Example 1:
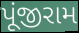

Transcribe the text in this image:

પૂંજીરામ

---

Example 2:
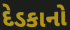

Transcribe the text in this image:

દેડકાનો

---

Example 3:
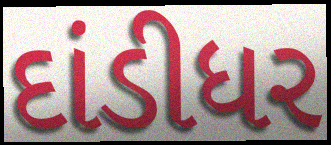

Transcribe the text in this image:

દાંડીધર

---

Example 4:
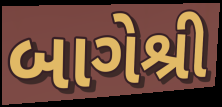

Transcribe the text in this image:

બાગેશ્રી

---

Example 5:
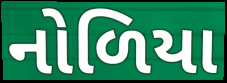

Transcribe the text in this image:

નોળિયા